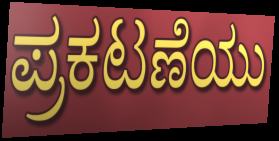
ಪ್ರಕಟಣೆಯು